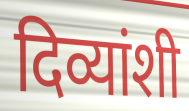
दिव्यांशी